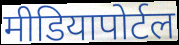
मीडियापोर्टल